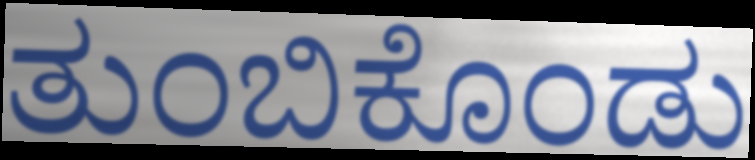
ತುಂಬಿಕೊಂಡು